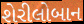
શેરીલોબાન